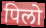
पिलो